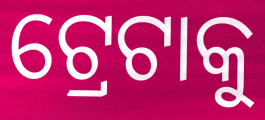
ଟ୍ରେଟାକୁ